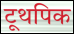
टूथपिक